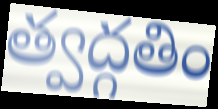
త్వద్గతిం